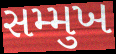
સમ્મુખ